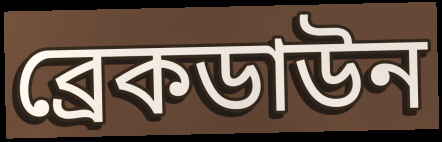
ব্রেকডাউন